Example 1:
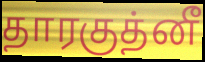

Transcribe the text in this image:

தாரகுத்னீ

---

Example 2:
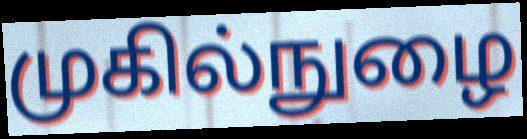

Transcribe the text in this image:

முகில்நுழை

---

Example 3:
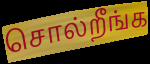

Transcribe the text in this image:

சொல்றீங்க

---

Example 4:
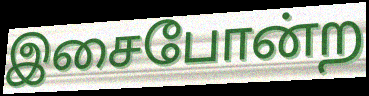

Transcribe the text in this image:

இசைபோன்ற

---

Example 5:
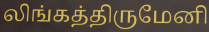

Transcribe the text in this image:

லிங்கத்திருமேனி